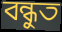
বন্ধুত